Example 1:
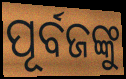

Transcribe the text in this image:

ପୂର୍ବଜଙ୍କୁ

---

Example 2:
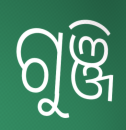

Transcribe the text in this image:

ଗୁଞ୍ଜି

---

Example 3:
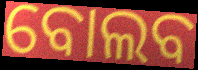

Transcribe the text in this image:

ବୋଲବ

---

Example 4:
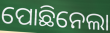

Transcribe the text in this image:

ପୋଛିନେଲା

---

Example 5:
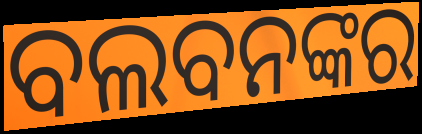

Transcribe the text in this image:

ବଲବନଙ୍କର